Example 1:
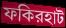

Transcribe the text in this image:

ফকিরহাট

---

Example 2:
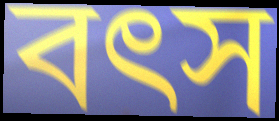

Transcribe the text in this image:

বৎস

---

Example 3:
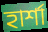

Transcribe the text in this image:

হার্শা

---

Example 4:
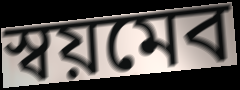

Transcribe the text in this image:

স্বয়মেব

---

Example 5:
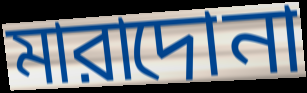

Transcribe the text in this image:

মারাদোনা